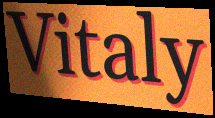
Vitaly